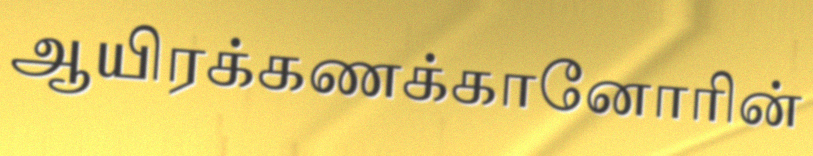
ஆயிரக்கணக்கானோரின்